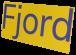
Fjord